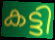
കട്ടി